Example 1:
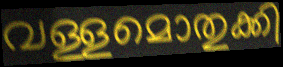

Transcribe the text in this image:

വള്ളമൊതുക്കി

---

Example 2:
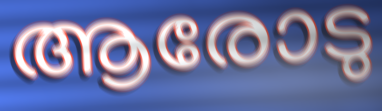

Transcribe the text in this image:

ആരോടു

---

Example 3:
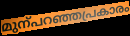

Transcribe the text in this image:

മുന്പറഞ്ഞപ്രകാരം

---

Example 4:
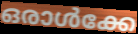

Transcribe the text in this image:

ഒരാൾക്കേ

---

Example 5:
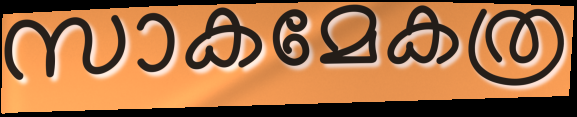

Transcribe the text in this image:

സാകമേകത്ര